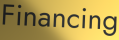
Financing